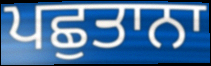
ਪਛੁਤਾਨਾ